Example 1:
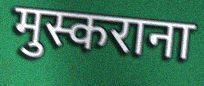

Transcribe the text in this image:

मुस्कराना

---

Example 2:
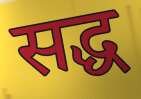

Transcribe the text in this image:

सद्ध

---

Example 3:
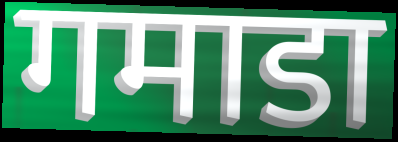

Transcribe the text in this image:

गमाडा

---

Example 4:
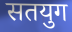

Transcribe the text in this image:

सतयुग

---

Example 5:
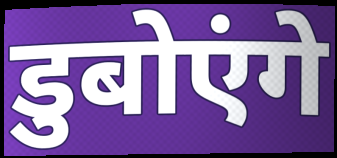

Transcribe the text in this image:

डुबोएंगे